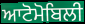
ਆਟੋਮੋਬਿਲੀ